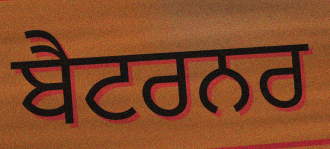
ਬੈਟਰਨਰ